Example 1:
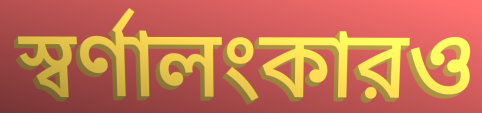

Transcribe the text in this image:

স্বর্ণালংকারও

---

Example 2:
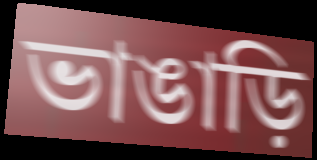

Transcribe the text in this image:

ভাঙাড়ি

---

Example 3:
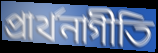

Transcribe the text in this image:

প্রার্থনাগীতি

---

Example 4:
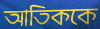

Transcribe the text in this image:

আতিককে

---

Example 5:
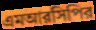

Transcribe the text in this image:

এমআরসিপির